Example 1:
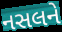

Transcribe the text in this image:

નસલને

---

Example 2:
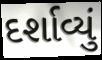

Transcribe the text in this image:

દર્શાવ્યું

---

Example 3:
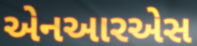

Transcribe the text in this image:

એનઆરએસ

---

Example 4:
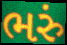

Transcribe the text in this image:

ભરું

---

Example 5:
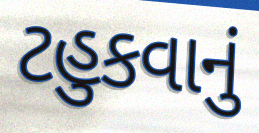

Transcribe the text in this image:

ટહુકવાનું